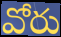
వోరు